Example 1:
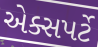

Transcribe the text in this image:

એક્સપર્ટે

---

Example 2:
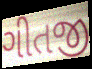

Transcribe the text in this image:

ગીતજી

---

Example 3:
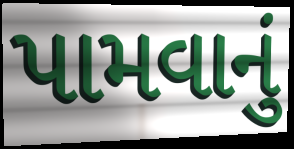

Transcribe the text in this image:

પામવાનું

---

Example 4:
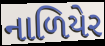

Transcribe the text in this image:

નાળિયેર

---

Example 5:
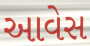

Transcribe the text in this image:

આવેસ